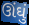
ઊંઘું